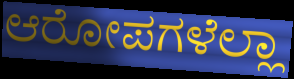
ಆರೋಪಗಳೆಲ್ಲಾ